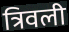
त्रिवली